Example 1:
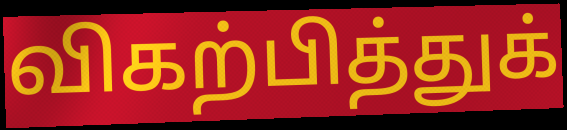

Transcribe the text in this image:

விகற்பித்துக்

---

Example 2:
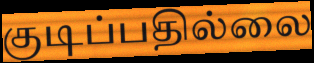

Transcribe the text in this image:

குடிப்பதில்லை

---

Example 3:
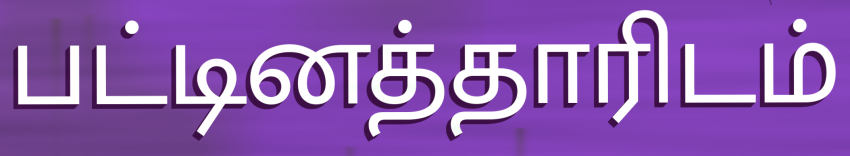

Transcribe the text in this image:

பட்டினத்தாரிடம்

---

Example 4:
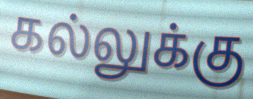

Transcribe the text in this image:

கல்லுக்கு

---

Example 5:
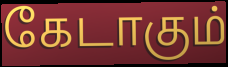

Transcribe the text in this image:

கேடாகும்